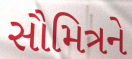
સૌમિત્રને